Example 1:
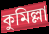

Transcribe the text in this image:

কুমিল্লা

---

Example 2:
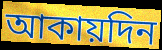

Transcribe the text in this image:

আকায়দিন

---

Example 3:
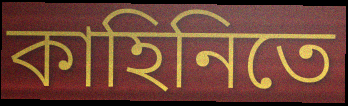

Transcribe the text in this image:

কাহিনিতে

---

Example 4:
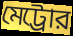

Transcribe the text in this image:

মেট্রোর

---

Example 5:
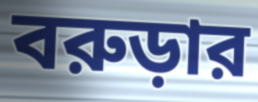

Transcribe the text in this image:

বরুড়ার